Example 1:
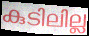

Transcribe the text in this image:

കുടിലില്ല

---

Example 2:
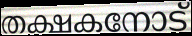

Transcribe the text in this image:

തക്ഷകനോട്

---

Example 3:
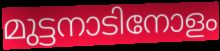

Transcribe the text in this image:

മുട്ടനാടിനോളം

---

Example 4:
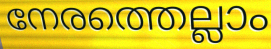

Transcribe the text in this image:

നേരത്തെല്ലാം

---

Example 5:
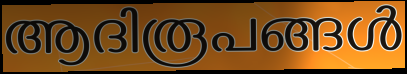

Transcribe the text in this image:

ആദിരൂപങ്ങൾ